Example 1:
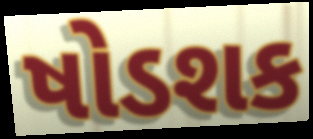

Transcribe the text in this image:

ષોડશક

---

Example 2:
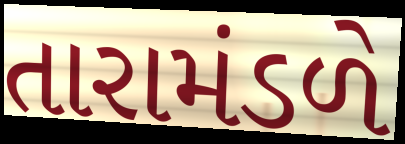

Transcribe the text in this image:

તારામંડળે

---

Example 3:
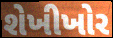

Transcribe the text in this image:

શેખીખોર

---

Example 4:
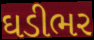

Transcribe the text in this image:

ઘડીભર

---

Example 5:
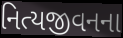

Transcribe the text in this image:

નિત્યજીવનના